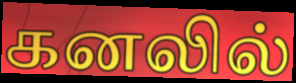
கனலில்